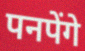
पनपेंगे